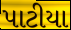
પાટીયા